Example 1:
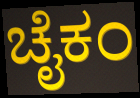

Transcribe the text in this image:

ಚೈಕಂ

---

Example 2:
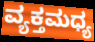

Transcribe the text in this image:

ವ್ಯಕ್ತಮಧ್ಯ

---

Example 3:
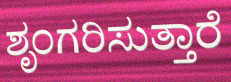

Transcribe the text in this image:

ಶೃಂಗರಿಸುತ್ತಾರೆ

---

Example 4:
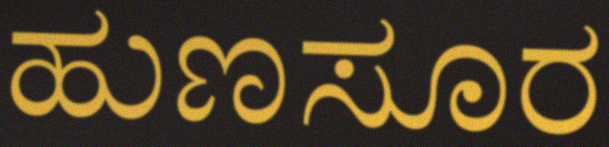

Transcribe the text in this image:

ಹುಣಸೂರ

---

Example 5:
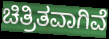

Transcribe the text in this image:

ಚಿತ್ರಿತವಾಗಿವೆ